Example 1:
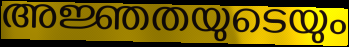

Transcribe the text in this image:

അജ്ഞതയുടെയും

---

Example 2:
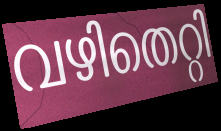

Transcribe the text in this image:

വഴിതെറ്റി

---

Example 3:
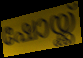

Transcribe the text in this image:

ഷോയ്ക്ക്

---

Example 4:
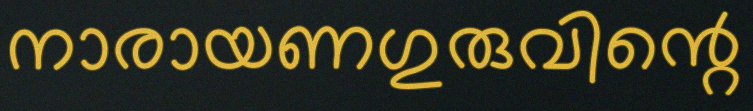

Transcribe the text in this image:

നാരായണഗുരുവിന്റെ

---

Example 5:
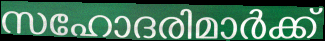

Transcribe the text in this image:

സഹോദരിമാർക്ക്